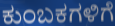
ಕುಂಬಕಗಳಿಗೆ